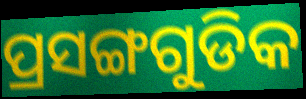
ପ୍ରସଙ୍ଗଗୁଡିକ